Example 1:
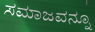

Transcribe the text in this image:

ಸಮಾಜವನ್ನೂ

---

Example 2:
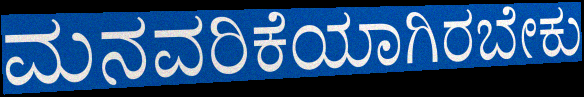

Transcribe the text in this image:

ಮನವರಿಕೆಯಾಗಿರಬೇಕು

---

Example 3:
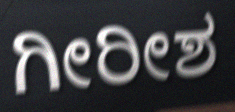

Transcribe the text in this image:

ಗೀರೀಶ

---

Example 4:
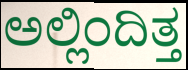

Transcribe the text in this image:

ಅಲ್ಲಿಂದಿತ್ತ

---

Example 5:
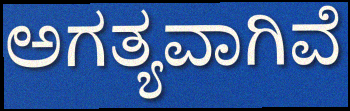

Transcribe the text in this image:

ಅಗತ್ಯವಾಗಿವೆ